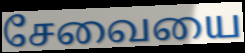
சேவையை